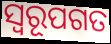
ସ୍ଵରୂପଗତ